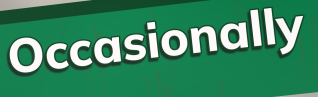
Occasionally